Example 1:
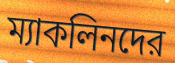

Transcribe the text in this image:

ম্যাকলিনদের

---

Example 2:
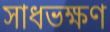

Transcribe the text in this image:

সাধভক্ষণ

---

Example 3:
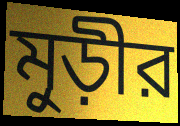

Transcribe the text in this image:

মুড়ীর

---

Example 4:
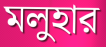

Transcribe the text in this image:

মলুহার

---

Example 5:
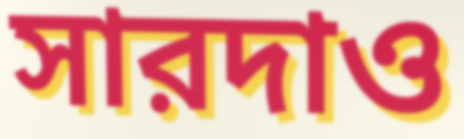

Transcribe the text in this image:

সারদাও